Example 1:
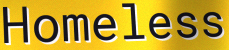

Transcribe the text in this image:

Homeless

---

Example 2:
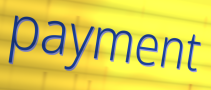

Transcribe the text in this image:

payment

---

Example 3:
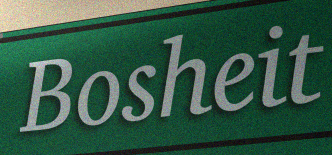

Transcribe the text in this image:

Bosheit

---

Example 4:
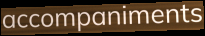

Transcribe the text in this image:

accompaniments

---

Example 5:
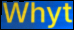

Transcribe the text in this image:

Whyt